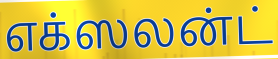
எக்ஸலன்ட்